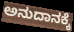
ಅನುದಾನಕ್ಕೆ